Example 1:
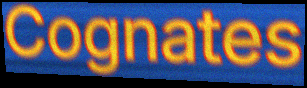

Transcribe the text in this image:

Cognates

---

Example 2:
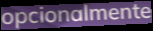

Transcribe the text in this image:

opcionalmente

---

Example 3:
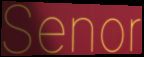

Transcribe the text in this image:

Senor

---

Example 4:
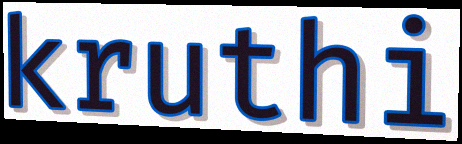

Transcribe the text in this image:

kruthi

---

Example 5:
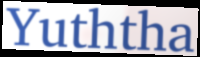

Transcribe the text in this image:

Yuththa